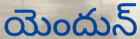
యెందున్